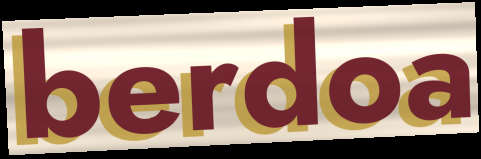
berdoa